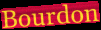
Bourdon